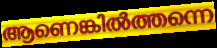
ആണെങ്കിൽത്തന്നെ